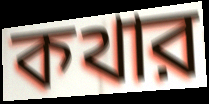
কথার